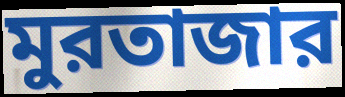
মুরতাজার